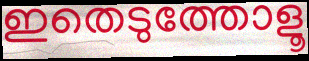
ഇതെടുത്തോളൂ